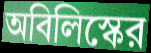
অবিলিস্কের